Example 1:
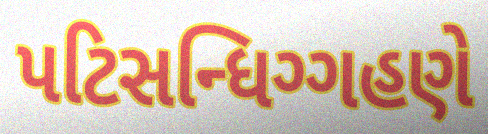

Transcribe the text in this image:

પટિસન્ધિગ્ગહણે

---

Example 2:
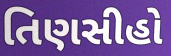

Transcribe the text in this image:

તિણસીહો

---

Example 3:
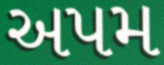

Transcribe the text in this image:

અપમ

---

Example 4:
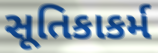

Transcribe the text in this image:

સૂતિકાકર્મ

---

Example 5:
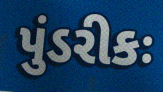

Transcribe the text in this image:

પુંડરીકઃ